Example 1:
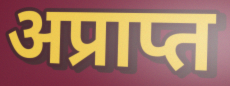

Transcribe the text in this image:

अप्राप्त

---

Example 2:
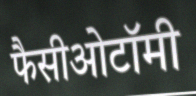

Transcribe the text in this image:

फैसीओटॉमी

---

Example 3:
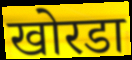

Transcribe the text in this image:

खोरडा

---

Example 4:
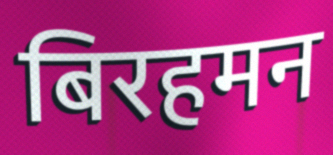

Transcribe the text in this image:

बिरहमन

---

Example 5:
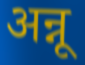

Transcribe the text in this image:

अन्नू